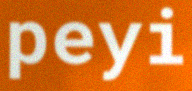
peyi